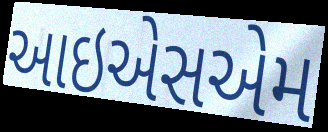
આઇએસએમ